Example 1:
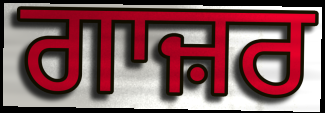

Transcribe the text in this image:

ਗਾਜ਼ਰ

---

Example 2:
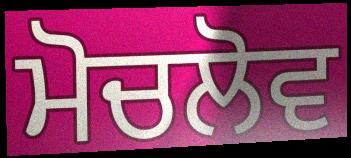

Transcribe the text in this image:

ਮੋਚਲੋਵ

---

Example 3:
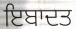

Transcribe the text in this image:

ਇਬਾਦਤ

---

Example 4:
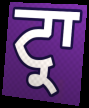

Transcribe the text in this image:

ਟ੍ਰਾ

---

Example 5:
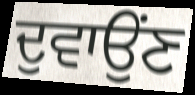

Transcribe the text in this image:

ਦੁਵਾਉਂਣ